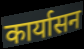
कार्यासन